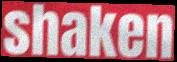
shaken